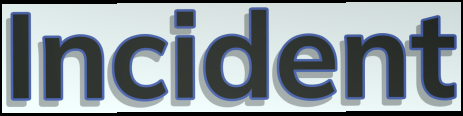
Incident